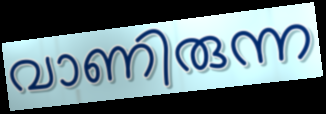
വാണിരുന്ന